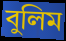
বুলিম